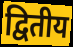
द्वितीय